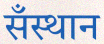
सँस्थान